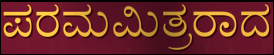
ಪರಮಮಿತ್ರರಾದ